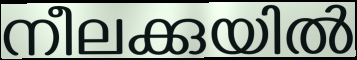
നീലക്കുയിൽ